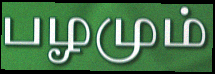
பழமும்